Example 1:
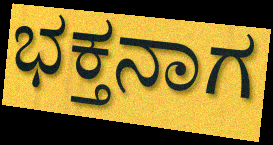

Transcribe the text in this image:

ಭಕ್ತನಾಗ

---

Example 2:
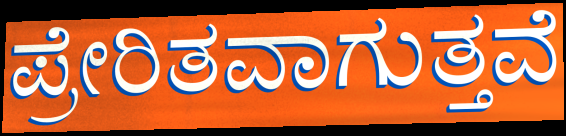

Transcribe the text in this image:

ಪ್ರೇರಿತವಾಗುತ್ತವೆ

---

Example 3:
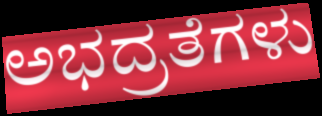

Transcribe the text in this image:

ಅಭದ್ರತೆಗಳು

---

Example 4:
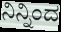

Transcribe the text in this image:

ನಿನ್ನಿಂದ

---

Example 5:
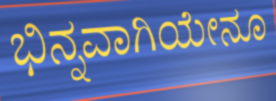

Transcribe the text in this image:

ಭಿನ್ನವಾಗಿಯೇನೂ